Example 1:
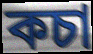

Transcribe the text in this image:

কচা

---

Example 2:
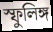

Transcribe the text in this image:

স্ফুলিঙ্গ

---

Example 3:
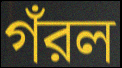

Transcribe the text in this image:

গঁরল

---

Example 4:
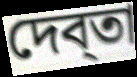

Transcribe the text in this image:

দেব্তা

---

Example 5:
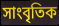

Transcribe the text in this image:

সাংবৃতিক